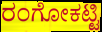
ರಂಗೋಕಟ್ಟಿ